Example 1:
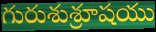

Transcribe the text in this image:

గురుశుశ్రూషయు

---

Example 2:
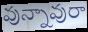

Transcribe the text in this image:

వున్నావురా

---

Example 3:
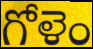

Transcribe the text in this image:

గోళెం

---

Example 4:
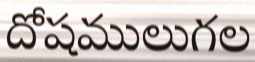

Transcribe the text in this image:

దోషములుగల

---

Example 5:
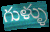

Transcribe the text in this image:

గుళ్ళు